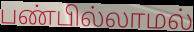
பண்பில்லாமல்